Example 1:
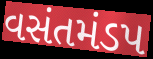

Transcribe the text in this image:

વસંતમંડપ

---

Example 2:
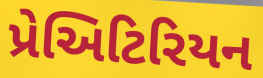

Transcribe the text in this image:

પ્રેઅિટિરિયન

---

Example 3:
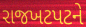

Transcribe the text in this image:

રાજખટપટને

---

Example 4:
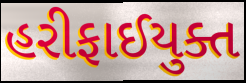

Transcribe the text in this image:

હરીફાઈયુક્ત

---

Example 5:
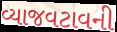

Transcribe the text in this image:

વ્યાજવટાવની